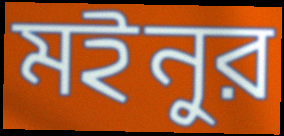
মইনুর